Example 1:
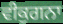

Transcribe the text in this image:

ਵੀਕੁਗਨਾ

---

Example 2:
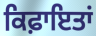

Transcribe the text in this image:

ਕਿਫ਼ਾਇਤਾਂ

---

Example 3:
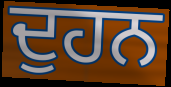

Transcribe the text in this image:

ਦੁਹਨ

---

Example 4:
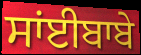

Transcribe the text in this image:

ਸਾਂਈਬਾਬੇ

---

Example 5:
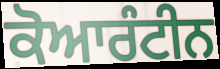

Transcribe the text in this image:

ਕੋਆਰੰਟੀਨ